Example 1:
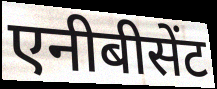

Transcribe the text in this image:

एनीबीसेंट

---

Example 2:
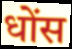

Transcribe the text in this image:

धोंस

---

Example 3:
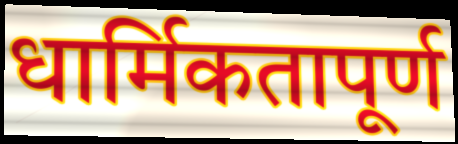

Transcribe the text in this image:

धार्मिकतापूर्ण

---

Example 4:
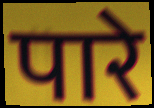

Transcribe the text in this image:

पारे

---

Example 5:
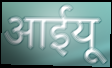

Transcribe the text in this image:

आईयू